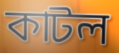
কাটল